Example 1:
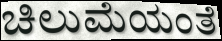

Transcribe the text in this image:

ಚಿಲುಮೆಯಂತೆ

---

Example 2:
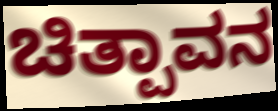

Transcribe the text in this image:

ಚಿತ್ಪಾವನ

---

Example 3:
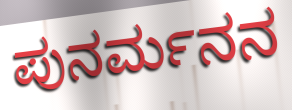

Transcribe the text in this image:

ಪುನರ್ಮನನ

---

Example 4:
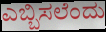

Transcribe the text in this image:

ಎಬ್ಬಿಸಲೆಂದು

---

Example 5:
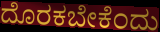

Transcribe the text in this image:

ದೊರಕಬೇಕೆಂದು